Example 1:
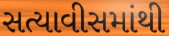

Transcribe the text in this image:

સત્યાવીસમાંથી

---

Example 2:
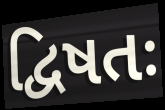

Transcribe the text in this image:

દ્વિષતઃ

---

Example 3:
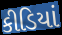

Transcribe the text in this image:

કીડિયાં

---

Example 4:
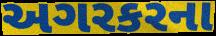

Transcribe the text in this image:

અગરકરના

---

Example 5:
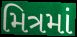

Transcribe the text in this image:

મિત્રમાં